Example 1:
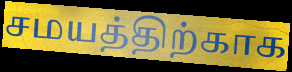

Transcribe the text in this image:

சமயத்திற்காக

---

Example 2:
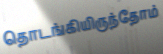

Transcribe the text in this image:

தொடங்கியிருந்தோம்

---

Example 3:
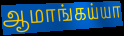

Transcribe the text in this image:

ஆமாங்கய்யா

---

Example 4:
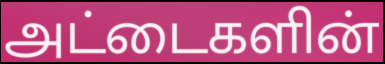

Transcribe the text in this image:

அட்டைகளின்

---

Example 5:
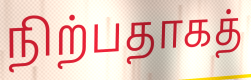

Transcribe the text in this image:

நிற்பதாகத்